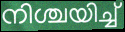
നിശ്ചയിച്ച്